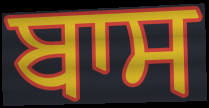
ਬਾਸ